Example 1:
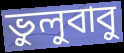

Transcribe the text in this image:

ভুলুবাবু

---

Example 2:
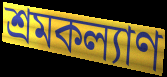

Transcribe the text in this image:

শ্রমকল্যাণ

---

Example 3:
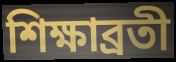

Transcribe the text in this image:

শিক্ষাব্রতী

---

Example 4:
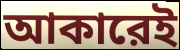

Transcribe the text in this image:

আকারেই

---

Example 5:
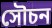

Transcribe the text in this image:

সৌচন